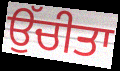
ਉੱਚੀਤਾ